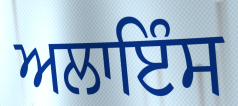
ਅਲਾਇੰਸ